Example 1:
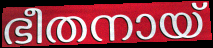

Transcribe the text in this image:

ഭീതനായ്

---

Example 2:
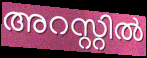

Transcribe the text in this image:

അറസ്റ്റിൽ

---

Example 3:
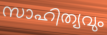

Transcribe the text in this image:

സാഹിത്യവും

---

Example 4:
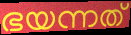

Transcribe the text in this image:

ഭയന്നത്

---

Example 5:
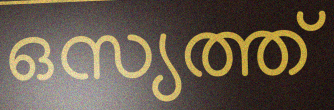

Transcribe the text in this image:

ഒസ്യത്ത്